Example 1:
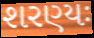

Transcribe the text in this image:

શરણ્યઃ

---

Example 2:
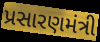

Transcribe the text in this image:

પ્રસારણમંત્રી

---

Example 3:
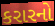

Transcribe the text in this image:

કરારનો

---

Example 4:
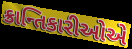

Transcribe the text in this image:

ક્રાન્તિકારીઓએ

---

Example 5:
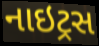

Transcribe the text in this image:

નાઇટ્રસ